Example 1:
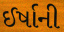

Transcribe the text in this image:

ઈર્ષાની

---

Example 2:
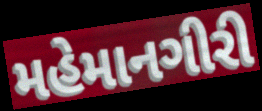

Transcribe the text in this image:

મહેમાનગીરી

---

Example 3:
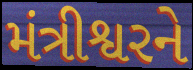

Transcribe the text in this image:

મંત્રીશ્વરને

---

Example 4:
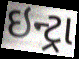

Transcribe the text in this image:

ઇન્ટ્રા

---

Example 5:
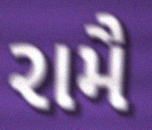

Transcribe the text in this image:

રામૈ